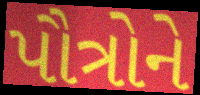
પૌત્રોને